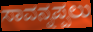
ಸಾವನ್ನಪ್ಪಲು